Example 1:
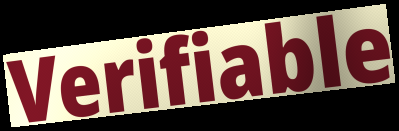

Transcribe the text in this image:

Verifiable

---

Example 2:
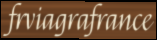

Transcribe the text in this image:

frviagrafrance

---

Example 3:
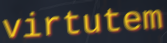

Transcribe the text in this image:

virtutem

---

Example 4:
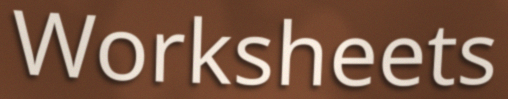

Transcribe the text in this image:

Worksheets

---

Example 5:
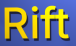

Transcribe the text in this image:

Rift